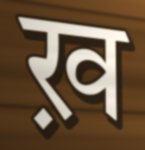
ख़